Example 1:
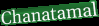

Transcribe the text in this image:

Chanatamal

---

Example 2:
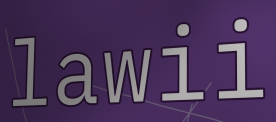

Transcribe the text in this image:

lawii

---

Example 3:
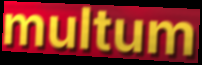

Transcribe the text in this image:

multum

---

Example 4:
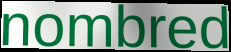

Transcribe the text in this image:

nombred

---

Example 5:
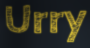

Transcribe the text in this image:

Urry